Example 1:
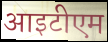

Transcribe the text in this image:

आइटीएम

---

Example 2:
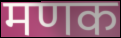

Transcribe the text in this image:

मणक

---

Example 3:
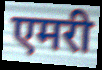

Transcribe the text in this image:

एमरी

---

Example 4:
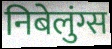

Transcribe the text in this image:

निबेलुंग्स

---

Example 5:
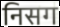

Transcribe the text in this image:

निसग